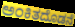
ಅಂಕಿತದೊಡನೆ